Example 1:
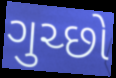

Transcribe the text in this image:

ગુચ્છો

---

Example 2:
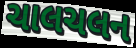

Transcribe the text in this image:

ચાલચલન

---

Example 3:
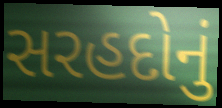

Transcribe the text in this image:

સરહદોનું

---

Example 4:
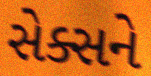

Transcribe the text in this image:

સેક્સને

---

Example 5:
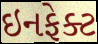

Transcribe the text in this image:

ઇનફેક્ટ